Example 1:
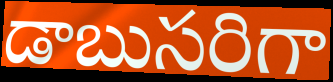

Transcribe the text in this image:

డాబుసరిగా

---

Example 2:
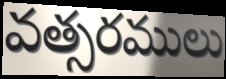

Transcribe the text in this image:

వత్సరములు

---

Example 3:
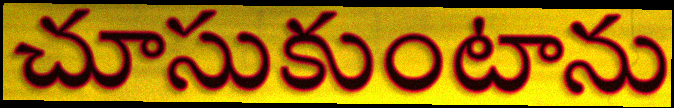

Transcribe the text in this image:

చూసుకుంటాను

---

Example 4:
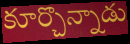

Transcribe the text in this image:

కూర్చొన్నాడు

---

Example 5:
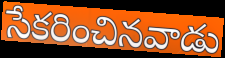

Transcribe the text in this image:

సేకరించినవాడు